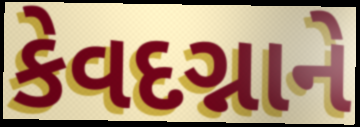
કેવદગ્નાને